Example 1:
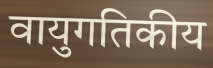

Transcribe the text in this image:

वायुगतिकीय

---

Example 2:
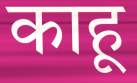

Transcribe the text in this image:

काहू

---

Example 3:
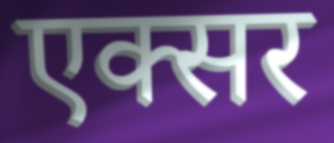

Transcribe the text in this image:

एक्सर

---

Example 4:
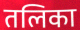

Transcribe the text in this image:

तलिका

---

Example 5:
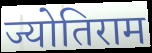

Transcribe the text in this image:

ज्योतिराम